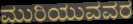
ಮುರಿಯುವವರ